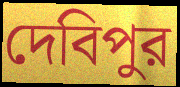
দেবিপুর